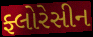
ફ્લોરેસીન